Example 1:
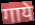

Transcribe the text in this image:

गाये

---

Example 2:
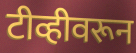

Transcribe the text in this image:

टीव्हीवरून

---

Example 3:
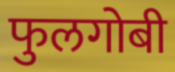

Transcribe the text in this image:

फुलगोबी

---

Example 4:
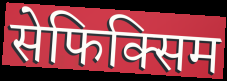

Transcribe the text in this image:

सेफिक्सिम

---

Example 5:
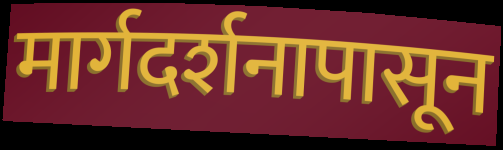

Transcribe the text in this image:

मार्गदर्शनापासून